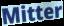
Mitter